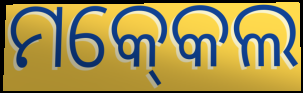
ମକ୍‍କେଲ